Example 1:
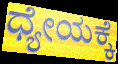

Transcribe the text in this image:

ಧ್ಯೇಯಕ್ಕೆ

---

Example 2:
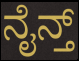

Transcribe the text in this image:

ನೈನ್ತ್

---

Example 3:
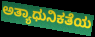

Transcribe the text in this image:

ಅತ್ಯಾಧುನಿಕತೆಯ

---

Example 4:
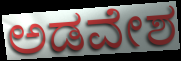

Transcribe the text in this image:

ಅಡವೇಶ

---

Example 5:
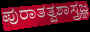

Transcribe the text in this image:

ಪುರಾತತ್ವಶಾಸ್ತ್ರಜ್ಞ